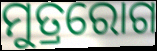
ମୁତ୍ରରୋଗ